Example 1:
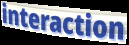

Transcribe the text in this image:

interaction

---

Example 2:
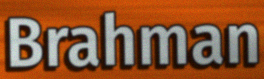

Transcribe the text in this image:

Brahman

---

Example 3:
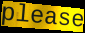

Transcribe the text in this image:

please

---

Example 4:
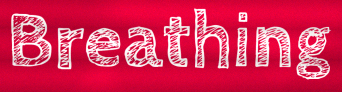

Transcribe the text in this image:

Breathing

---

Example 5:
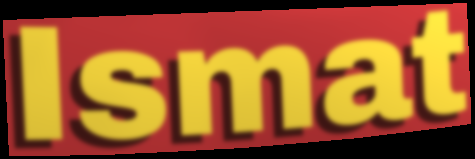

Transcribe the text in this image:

Ismat